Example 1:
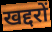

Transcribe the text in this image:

खद्दरों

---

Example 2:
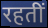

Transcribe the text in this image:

रहतीं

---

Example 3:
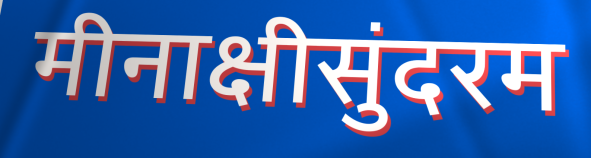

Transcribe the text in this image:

मीनाक्षीसुंदरम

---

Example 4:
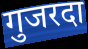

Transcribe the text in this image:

गुजरदा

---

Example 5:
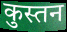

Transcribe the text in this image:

कुस्तन